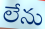
లేను